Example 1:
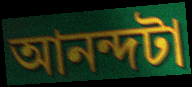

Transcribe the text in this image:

আনন্দটা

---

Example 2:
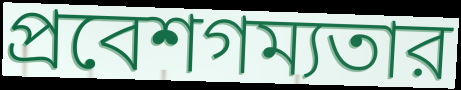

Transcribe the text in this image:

প্রবেশগম্যতার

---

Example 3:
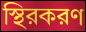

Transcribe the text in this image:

স্থিরকরণ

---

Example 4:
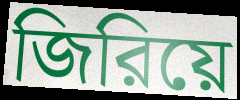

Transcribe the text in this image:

জিরিয়ে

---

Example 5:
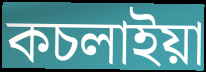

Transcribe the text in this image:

কচলাইয়া